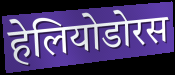
हेलियोडोरस